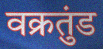
वक्रतुंड